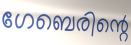
ഗേബെരിന്റെ